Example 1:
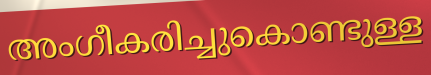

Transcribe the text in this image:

അംഗീകരിച്ചുകൊണ്ടുള്ള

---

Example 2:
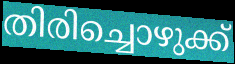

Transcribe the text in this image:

തിരിച്ചൊഴുക്ക്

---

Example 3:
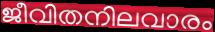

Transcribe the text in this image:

ജീവിതനിലവാരം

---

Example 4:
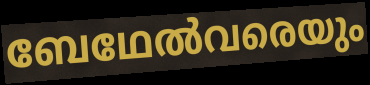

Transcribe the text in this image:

ബേഥേൽവരെയും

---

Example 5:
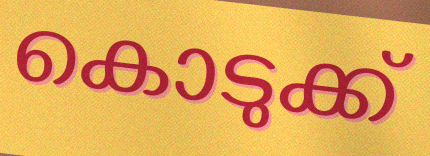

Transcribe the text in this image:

കൊടുക്ക്